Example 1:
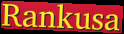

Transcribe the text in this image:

Rankusa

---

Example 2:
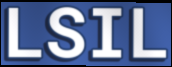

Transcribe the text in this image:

LSIL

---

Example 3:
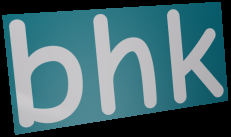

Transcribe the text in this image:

bhk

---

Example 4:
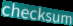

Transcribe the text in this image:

checksum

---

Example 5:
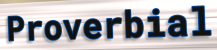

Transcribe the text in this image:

Proverbial